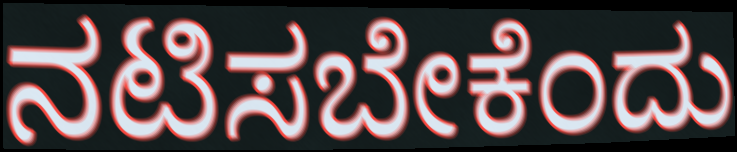
ನಟಿಸಬೇಕೆಂದು